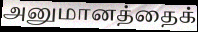
அனுமானத்தைக்